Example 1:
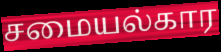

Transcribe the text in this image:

சமையல்கார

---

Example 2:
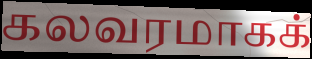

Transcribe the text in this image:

கலவரமாகக்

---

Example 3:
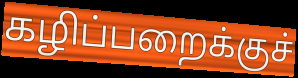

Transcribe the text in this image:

கழிப்பறைக்குச்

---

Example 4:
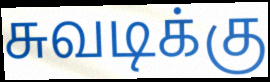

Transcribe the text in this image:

சுவடிக்கு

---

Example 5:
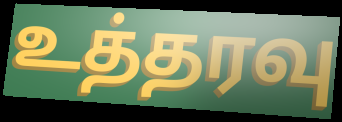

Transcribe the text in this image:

உத்தரவு